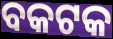
ବକଟକ